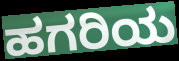
ಹಗರಿಯ